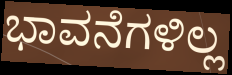
ಭಾವನೆಗಳಿಲ್ಲ